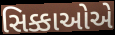
સિક્કાઓએ